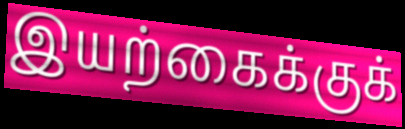
இயற்கைக்குக்